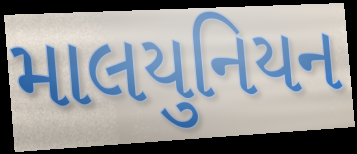
માલયુનિયન